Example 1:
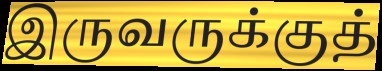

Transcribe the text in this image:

இருவருக்குத்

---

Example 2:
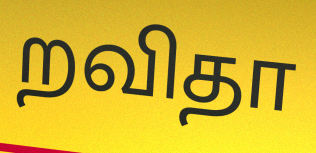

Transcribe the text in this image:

றவிதா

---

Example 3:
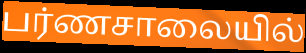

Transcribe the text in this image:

பர்ணசாலையில்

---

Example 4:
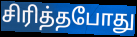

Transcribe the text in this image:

சிரித்தபோது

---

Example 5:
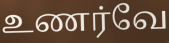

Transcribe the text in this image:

உணர்வே